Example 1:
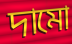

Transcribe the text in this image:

দামো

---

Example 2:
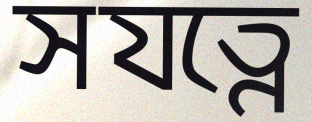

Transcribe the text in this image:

সযত্নে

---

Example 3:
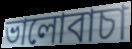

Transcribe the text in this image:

ভালোবাচা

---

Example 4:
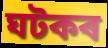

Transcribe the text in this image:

ঘটকৰ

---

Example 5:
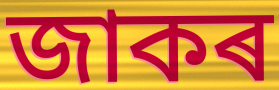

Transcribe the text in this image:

জাকৰ